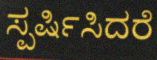
ಸ್ಪರ್ಷಿಸಿದರೆ